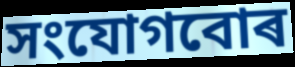
সংযোগবোৰ